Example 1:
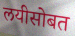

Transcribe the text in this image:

लयीसोबत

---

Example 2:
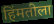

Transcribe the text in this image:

हिंमतीला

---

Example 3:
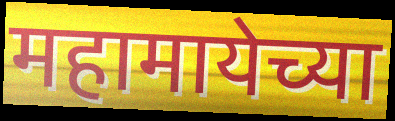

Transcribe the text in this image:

महामायेच्या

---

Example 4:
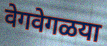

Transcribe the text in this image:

वेगवेगळया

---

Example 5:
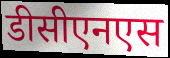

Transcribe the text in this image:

डीसीएनएस